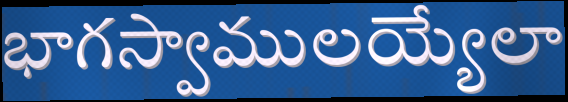
భాగస్వాములయ్యేలా